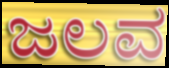
ಜಲವ